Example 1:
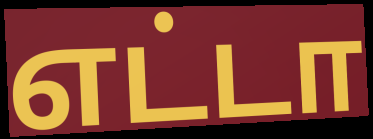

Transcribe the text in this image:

எட்டா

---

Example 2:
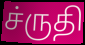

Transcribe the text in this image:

ச்ருதி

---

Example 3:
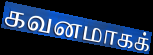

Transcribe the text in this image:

கவனமாகக்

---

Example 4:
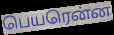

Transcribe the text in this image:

பெயரென்ன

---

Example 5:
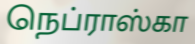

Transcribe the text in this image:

நெப்ராஸ்கா